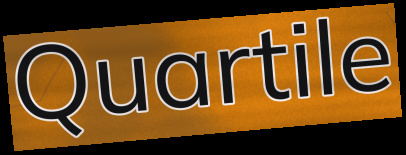
Quartile